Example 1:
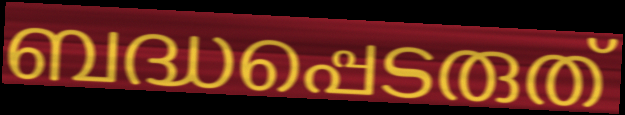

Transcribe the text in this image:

ബദ്ധപ്പെടരുത്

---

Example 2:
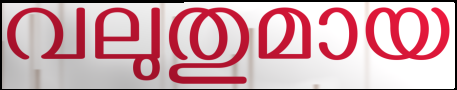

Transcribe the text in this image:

വലുതുമായ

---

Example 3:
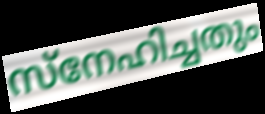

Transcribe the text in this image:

സ്നേഹിച്ചതും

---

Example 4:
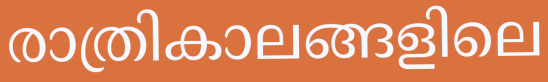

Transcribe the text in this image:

രാത്രികാലങ്ങളിലെ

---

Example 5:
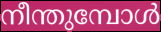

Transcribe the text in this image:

നീന്തുമ്പോൾ